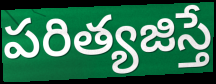
పరిత్యజిస్తే